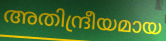
അതിന്ദ്രീയമായ